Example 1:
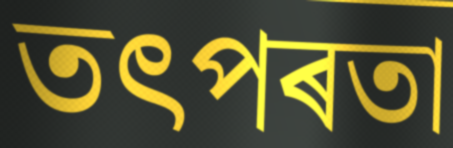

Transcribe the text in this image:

তৎপৰতা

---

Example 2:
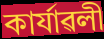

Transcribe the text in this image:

কাৰ্যাৱলী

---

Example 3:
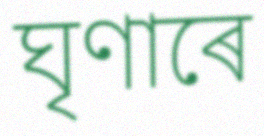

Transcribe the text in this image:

ঘৃণাৰে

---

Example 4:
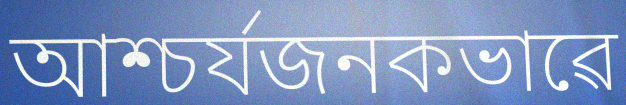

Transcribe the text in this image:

আশ্চৰ্যজনকভাৱে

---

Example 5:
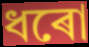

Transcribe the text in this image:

ধৰো